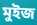
মুইজ